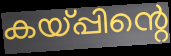
കയ്പ്പിന്റെ